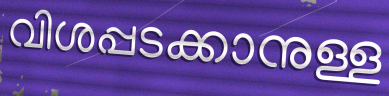
വിശപ്പടക്കാനുള്ള